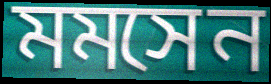
মমসেন